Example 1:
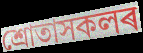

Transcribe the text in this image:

শ্ৰোতাসকলৰ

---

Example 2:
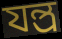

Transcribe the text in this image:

যন্ত্ৰ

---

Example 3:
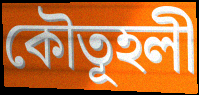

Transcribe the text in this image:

কৌতূহলী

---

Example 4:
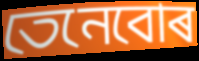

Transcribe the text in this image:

তেনেবোৰ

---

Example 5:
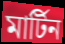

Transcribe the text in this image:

মাৰ্টিন